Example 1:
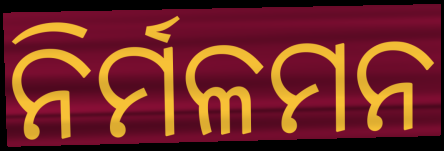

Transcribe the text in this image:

ନିର୍ମଳମନ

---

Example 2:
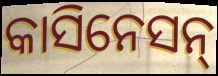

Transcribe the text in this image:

କାସିନେସନ୍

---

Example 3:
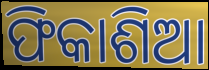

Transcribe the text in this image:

ଫିକାଶିଆ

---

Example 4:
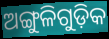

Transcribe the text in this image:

ଅଙ୍ଗୁଳିଗୁଡ଼ିକ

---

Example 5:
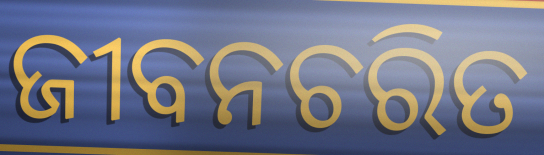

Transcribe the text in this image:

ଜୀବନଚରିତ